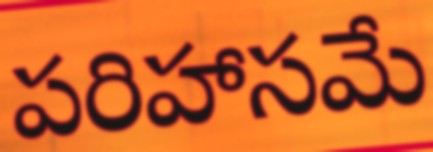
పరిహాసమే